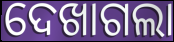
ଦେଖାଗଲା